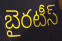
బైరటీస్